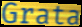
Grata